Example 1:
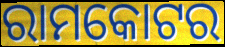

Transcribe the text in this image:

ରାମକୋଟର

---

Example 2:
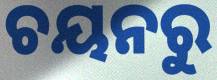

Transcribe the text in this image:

ଚୟନରୁ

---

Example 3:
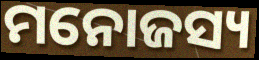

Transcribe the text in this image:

ମନୋଜସ୍ୟ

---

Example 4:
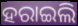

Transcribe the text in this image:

ହରାଇଲି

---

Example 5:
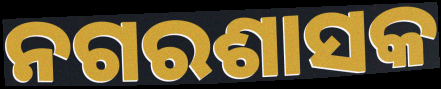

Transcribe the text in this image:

ନଗରଶାସକ